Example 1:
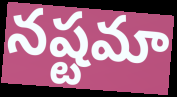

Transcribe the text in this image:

నష్టమా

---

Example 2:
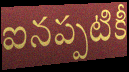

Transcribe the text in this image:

ఐనప్పటికీ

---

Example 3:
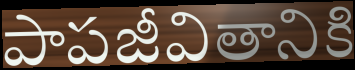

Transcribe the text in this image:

పాపజీవితానికి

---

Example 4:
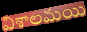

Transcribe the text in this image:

విశాలమయి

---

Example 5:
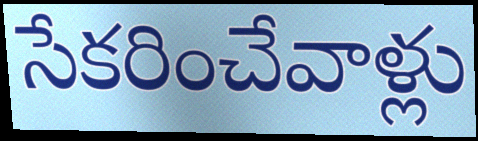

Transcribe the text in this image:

సేకరించేవాళ్లు